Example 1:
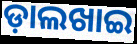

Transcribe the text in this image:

ଡ଼ାଲଖାଇ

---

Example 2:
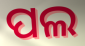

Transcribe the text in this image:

ପଲ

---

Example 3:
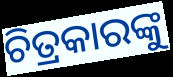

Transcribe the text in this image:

ଚିତ୍ରକାରଙ୍କୁ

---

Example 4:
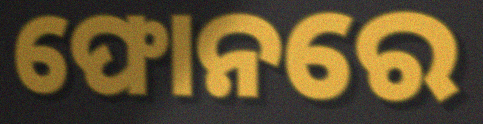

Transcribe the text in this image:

ଫୋନରେ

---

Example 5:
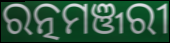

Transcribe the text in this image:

ରତ୍ନମଞ୍ଜରୀ